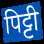
पिट्टी